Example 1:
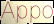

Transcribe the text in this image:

Appo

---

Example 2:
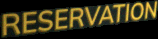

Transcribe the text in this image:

RESERVATION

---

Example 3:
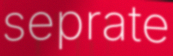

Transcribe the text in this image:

seprate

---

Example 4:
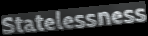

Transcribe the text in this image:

Statelessness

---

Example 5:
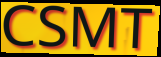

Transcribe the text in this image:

CSMT